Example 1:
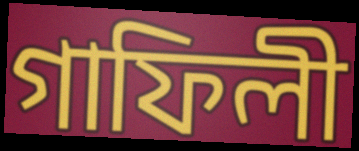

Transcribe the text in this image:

গাফিলী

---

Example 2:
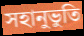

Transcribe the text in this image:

সহানুভুতি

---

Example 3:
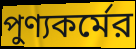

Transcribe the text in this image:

পুণ্যকর্মের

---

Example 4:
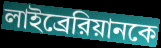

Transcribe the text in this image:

লাইব্রেরিয়ানকে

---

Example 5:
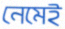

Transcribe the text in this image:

নেমেই